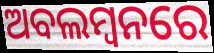
ଅବଲମ୍ବନରେ